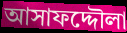
আসাফদ্দৌলা